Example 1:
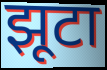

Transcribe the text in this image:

झूटा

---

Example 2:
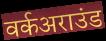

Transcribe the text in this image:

वर्कअराउंड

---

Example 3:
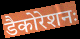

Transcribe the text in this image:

डैकोरेशनः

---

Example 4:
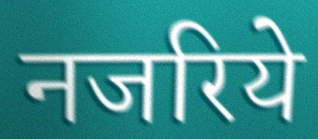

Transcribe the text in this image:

नजरिये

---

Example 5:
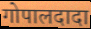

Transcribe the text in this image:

गोपालदादा